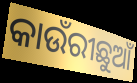
କାଉଁରୀଛୁଆଁ